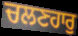
ਚਲਣਹਾਰੁ